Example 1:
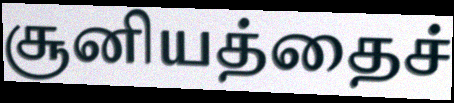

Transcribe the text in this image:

சூனியத்தைச்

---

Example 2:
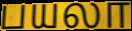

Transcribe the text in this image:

பயலா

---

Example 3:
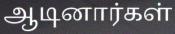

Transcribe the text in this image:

ஆடினார்கள்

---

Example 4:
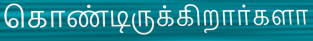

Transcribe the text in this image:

கொண்டிருக்கிறார்களா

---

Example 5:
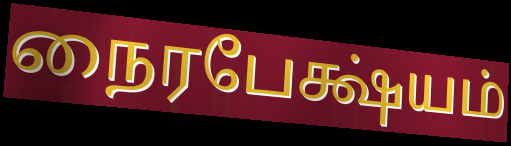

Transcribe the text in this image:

நைரபேக்ஷ்யம்